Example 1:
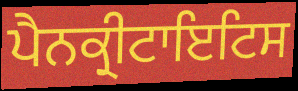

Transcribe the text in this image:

ਪੈਨਕ੍ਰੀਟਾਇਟਿਸ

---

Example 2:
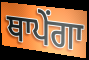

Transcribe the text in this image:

ਥਾਪੇਂਗਾ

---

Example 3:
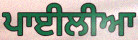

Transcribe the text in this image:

ਪਾਈਲੀਆ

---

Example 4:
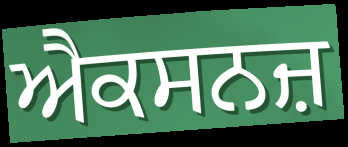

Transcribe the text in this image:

ਐਕਸਨਜ਼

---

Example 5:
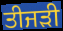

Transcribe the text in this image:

ਤੀਜੜੀ